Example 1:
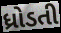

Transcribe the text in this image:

ધ્રોડતી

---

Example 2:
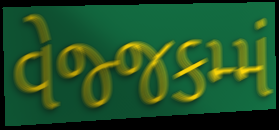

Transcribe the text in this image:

વેજ્જકમ્મં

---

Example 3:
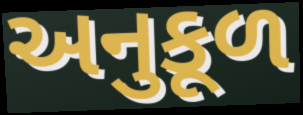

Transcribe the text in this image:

અનુકૂળ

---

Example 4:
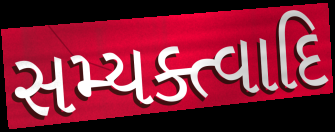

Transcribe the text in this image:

સમ્યક્ત્વાદિ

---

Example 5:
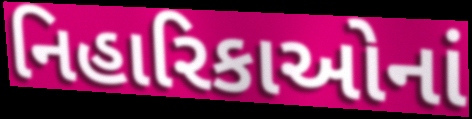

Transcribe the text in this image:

નિહારિકાઓનાં